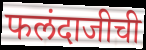
फलंदाजीची